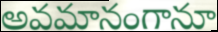
అవమానంగానూ